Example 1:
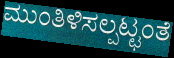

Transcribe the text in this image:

ಮುಂತಿಳಿಸಲ್ಪಟ್ಟಂತೆ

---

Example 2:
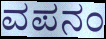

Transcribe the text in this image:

ವಪನಂ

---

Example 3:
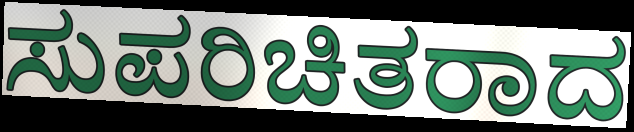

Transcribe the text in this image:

ಸುಪರಿಚಿತರಾದ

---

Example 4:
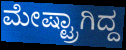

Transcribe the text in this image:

ಮೇಷ್ಟ್ರಾಗಿದ್ದ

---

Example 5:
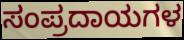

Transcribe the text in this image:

ಸಂಪ್ರದಾಯಗಳ